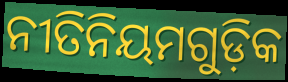
ନୀତିନିୟମଗୁଡ଼ିକ